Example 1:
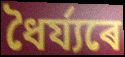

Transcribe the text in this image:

ধৈৰ্য্যৰে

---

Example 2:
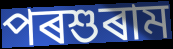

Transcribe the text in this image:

পৰশুৰাম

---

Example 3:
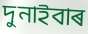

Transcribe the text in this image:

দুনাইবাৰ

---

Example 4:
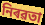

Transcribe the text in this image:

নিৰৱতা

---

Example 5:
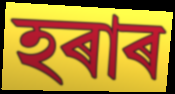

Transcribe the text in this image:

হৰাৰ